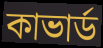
কাভার্ড